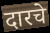
दारचे